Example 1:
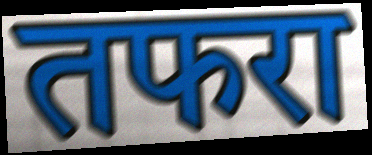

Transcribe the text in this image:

तफरा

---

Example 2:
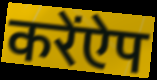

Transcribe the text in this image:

करेंऐप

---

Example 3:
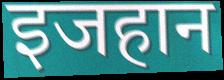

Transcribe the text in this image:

इजहान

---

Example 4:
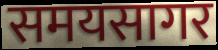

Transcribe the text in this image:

समयसागर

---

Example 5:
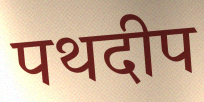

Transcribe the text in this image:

पथदीप